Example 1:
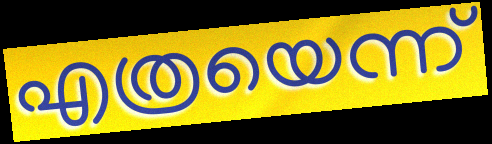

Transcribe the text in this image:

എത്രയെന്ന്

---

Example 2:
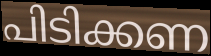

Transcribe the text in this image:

പിടിക്കണ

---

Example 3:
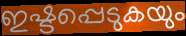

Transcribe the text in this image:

ഇഷ്ടപ്പെടുകയും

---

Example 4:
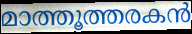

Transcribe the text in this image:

മാത്തൂത്തരകൻ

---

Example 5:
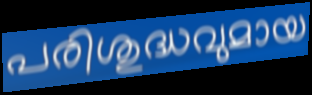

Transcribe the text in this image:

പരിശുദ്ധവുമായ